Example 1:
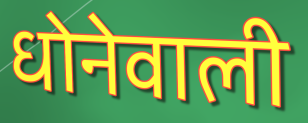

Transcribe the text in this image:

धोनेवाली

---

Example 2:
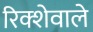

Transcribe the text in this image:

रिक्‍शेवाले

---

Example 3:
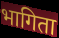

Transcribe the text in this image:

भागिता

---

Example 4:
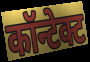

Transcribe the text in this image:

कॉन्टेक्ट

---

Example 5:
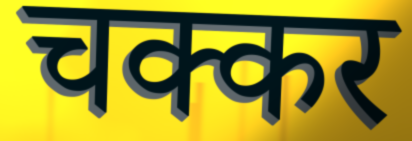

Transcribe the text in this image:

चक्कर